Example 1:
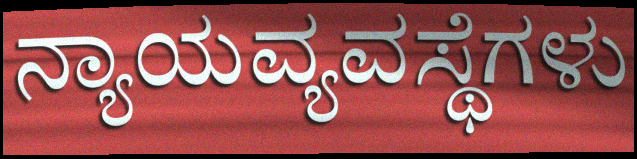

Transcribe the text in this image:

ನ್ಯಾಯವ್ಯವಸ್ಥೆಗಳು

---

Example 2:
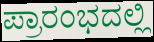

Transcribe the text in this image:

ಪ್ರಾರಂಭದಲ್ಲಿ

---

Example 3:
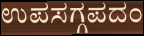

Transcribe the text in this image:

ಉಪಸಗ್ಗಪದಂ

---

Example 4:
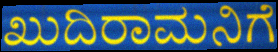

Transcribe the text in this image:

ಖುದಿರಾಮನಿಗೆ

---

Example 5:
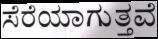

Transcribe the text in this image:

ಸೆರೆಯಾಗುತ್ತವೆ